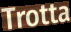
Trotta